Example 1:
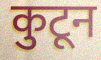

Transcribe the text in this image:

कुटून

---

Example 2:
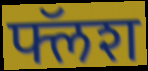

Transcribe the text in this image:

फ्लॅश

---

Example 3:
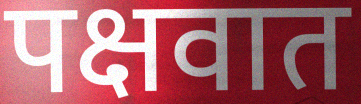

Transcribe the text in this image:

पक्षवात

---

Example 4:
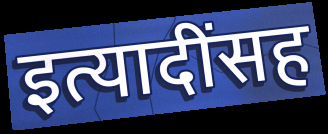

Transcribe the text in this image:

इत्यादींसह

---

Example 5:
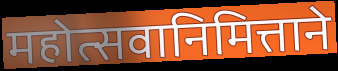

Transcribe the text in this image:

महोत्सवानिमित्ताने